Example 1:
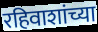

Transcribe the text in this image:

रहिवाशांच्या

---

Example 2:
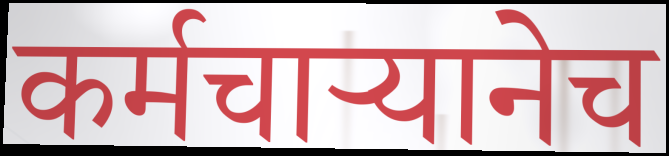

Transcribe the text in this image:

कर्मचाऱ्यानेच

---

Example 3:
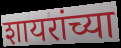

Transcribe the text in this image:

शायरांच्या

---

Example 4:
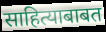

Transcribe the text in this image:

साहित्याबाबत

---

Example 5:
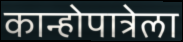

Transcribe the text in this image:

कान्होपात्रेला